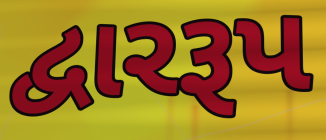
દ્વારરૂપ